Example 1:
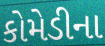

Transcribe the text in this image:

કોમેડીના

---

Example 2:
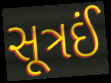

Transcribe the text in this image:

સૂત્રઈં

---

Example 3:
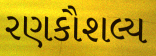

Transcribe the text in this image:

રણકૌશલ્ય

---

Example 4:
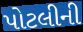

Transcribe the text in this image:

પોટલીની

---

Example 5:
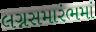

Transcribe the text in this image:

લગ્નસમારંભમાં